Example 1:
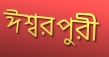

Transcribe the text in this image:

ঈশ্বরপুরী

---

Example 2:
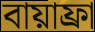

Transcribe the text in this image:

বায়াফ্রা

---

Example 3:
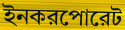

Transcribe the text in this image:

ইনকরপোরেট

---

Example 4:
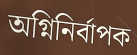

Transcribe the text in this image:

অগ্নিনির্বাপক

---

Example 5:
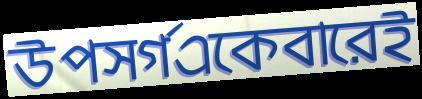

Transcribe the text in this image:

উপসর্গএকেবারেই